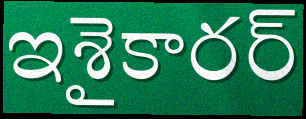
ఇశైకారర్